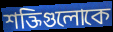
শক্তিগুলোকে